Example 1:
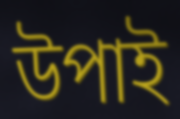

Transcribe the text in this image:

উপাই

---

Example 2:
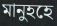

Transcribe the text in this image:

মানুহহে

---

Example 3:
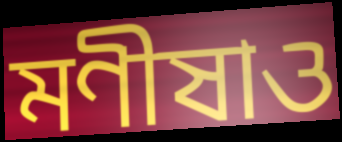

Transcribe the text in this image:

মণীষাও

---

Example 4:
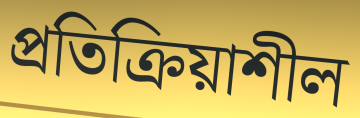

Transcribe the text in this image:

প্ৰতিক্ৰিয়াশীল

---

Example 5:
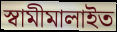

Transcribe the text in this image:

স্বামীমালাইত